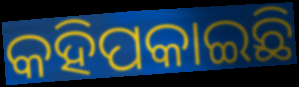
କହିପକାଇଛି